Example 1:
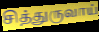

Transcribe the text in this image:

சித்துருவாய்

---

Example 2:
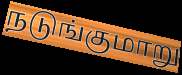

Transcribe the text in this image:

நடுங்குமாறு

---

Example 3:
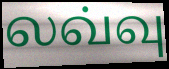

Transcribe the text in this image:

லவ்வு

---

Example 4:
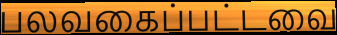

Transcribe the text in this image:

பலவகைப்பட்டவை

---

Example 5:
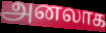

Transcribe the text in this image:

அனலாக